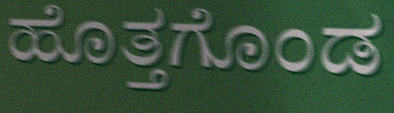
ಹೊತ್ತಗೊಂಡ